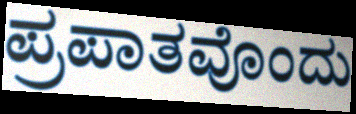
ಪ್ರಪಾತವೊಂದು